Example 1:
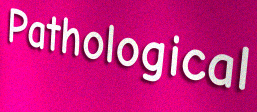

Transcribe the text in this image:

Pathological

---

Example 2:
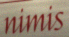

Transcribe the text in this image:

nimis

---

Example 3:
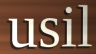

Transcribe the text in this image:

usil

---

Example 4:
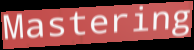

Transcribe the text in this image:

Mastering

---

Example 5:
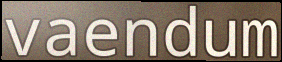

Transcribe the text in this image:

vaendum